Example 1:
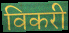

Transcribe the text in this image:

विकरी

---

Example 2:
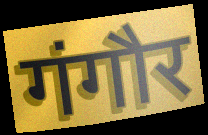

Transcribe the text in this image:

गंगौर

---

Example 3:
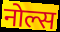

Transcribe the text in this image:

नोल्स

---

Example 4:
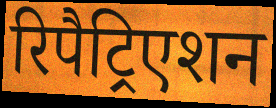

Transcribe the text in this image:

रिपैट्रिएशन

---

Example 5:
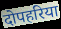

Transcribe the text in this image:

दोपहरिया